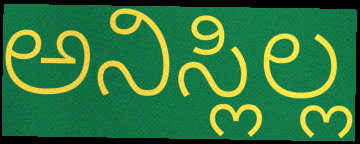
ಅನಿಸ್ಲಿಲ್ಲ